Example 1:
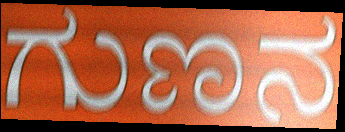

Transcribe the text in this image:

ಗುಣನ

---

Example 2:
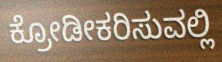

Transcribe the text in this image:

ಕ್ರೋಡೀಕರಿಸುವಲ್ಲಿ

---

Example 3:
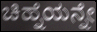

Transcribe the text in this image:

ಚಿಹ್ನೆಯನ್ನೇ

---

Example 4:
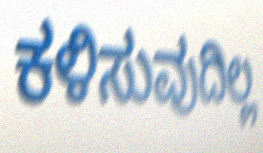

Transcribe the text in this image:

ಕಳಿಸುವುದಿಲ್ಲ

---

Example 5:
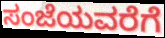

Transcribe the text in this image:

ಸಂಜೆಯವರೆಗೆ